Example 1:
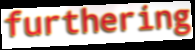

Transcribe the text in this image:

furthering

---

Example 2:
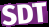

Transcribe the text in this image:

SDT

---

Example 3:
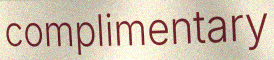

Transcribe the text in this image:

complimentary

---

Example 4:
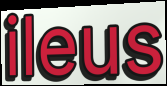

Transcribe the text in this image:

ileus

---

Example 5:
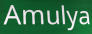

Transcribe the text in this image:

Amulya